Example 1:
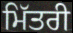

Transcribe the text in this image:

ਮਿੱਤਰੀ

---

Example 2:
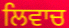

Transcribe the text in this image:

ਲਿਵਾਚ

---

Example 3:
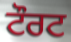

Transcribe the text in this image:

ਟੌਰਟ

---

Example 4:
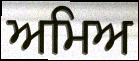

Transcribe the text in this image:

ਅਮਿਅ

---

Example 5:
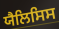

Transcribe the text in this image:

ਯੈਲਿਸਿਸ